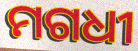
ମଗଧୀ